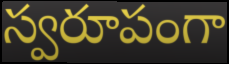
స్వరూపంగా